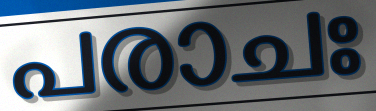
പരാചഃ